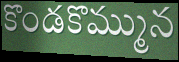
కొండకొమ్మున